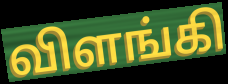
விளங்கி